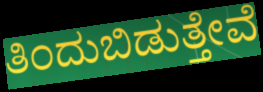
ತಿಂದುಬಿಡುತ್ತೇವೆ